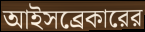
আইসব্রেকারের